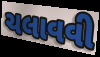
ચલાવવી